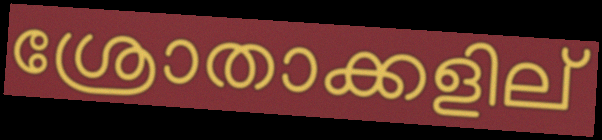
ശ്രോതാക്കളില്